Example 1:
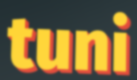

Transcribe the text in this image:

tuni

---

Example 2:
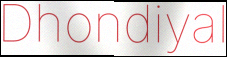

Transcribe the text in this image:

Dhondiyal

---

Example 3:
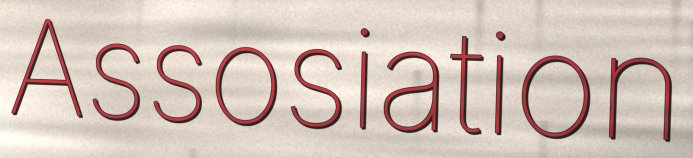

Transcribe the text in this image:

Assosiation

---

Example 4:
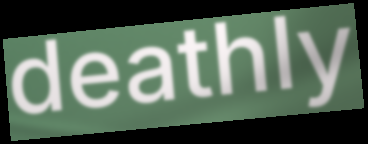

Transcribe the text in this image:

deathly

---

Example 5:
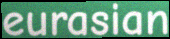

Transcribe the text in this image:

eurasian